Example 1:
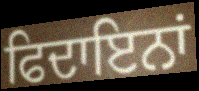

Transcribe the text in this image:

ਫਿਦਾਇਨਾਂ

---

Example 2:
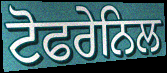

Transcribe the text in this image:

ਟੋਫਰੇਨਿਲ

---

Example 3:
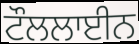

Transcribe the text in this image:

ਟੌਲਲਾਈਨ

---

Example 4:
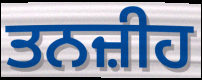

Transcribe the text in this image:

ਤਨਜ਼ੀਹ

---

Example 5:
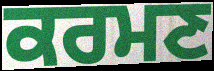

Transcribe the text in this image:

ਕਰਮਣ